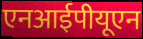
एनआईपीयूएन